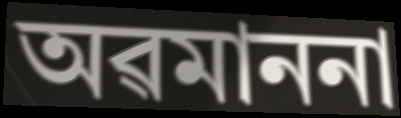
অৱমাননা